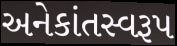
અનેકાંતસ્વરૂપ